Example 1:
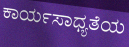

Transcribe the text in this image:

ಕಾರ್ಯಸಾಧ್ಯತೆಯ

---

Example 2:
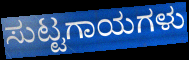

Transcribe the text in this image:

ಸುಟ್ಟಗಾಯಗಳು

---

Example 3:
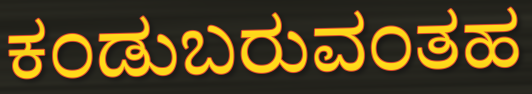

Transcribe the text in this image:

ಕಂಡುಬರುವಂತಹ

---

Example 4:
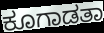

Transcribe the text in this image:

ಕೂಗಾಡತಾ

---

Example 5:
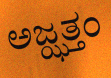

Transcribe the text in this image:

ಅಜ್ಝತ್ತಂ